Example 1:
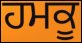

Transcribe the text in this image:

ਹਮਕੂ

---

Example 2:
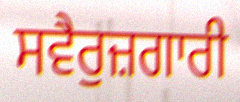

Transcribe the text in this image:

ਸਵੈਰੁਜ਼ਗਾਰੀ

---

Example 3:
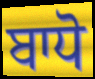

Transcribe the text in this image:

ਬਾਧੋ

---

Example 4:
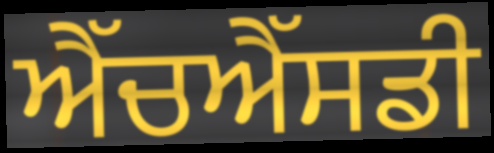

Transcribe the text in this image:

ਐੱਚਐੱਸਡੀ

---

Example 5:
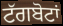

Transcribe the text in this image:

ਟੱਗਬੋਟਾਂ